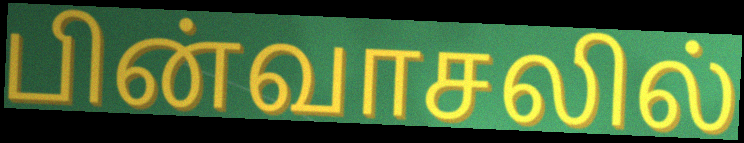
பின்வாசலில்